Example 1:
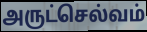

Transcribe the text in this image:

அருட்செல்வம்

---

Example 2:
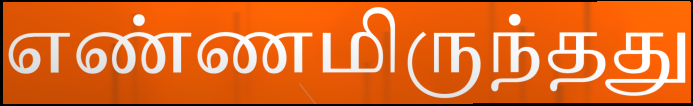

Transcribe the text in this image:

எண்ணமிருந்தது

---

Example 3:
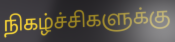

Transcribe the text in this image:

நிகழ்ச்சிகளுக்கு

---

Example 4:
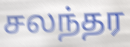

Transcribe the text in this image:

சலந்தர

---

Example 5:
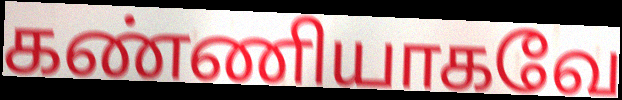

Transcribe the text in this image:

கண்ணியாகவே